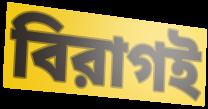
বিরাগই